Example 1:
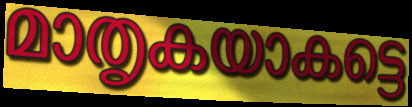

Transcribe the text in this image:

മാതൃകയാകട്ടെ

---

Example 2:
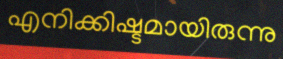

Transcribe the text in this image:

എനിക്കിഷ്ടമായിരുന്നു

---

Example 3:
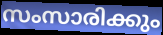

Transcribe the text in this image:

സംസാരിക്കും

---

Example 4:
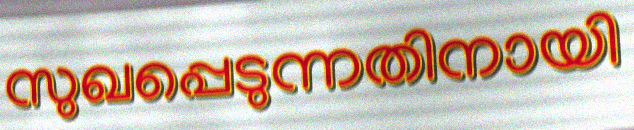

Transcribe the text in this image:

സുഖപ്പെടുന്നതിനായി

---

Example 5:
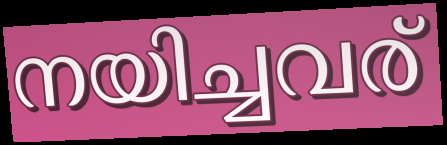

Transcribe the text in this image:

നയിച്ചവര്